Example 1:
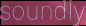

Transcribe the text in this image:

soundly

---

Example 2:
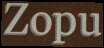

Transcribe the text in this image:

Zopu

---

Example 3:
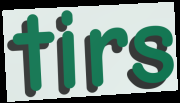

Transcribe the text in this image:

tirs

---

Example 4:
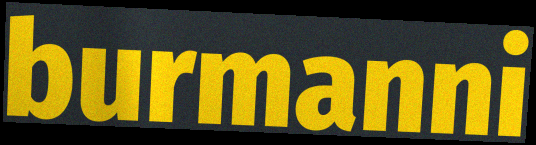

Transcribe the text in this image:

burmanni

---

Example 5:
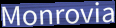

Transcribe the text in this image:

Monrovia